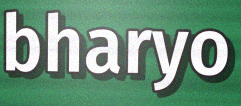
bharyo